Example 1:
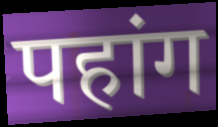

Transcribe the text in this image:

पहांग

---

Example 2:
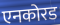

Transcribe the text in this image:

एनकोरड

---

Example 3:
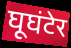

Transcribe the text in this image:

घूघंटेर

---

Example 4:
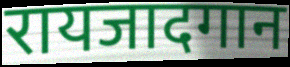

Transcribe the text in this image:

रायजादगान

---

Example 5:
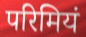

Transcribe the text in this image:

परिमियं